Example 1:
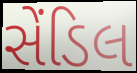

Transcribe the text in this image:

સેંડિલ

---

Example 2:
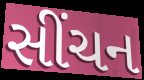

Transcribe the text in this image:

સીંચન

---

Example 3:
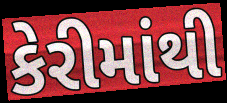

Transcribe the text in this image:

કેરીમાંથી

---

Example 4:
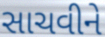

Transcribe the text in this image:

સાચવીને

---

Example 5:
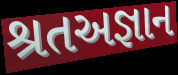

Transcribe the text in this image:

શ્રતઅજ્ઞાન